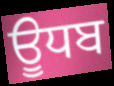
ਊਧਬ